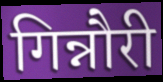
गिन्नौरी